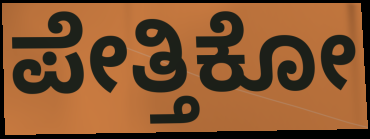
ಪೇತ್ತಿಕೋ